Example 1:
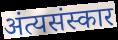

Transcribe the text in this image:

अंत्यसंस्कार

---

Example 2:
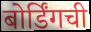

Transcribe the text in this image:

बोर्डिंगची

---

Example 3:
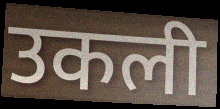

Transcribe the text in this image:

उकली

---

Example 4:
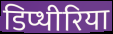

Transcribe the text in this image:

डिप्थीरिया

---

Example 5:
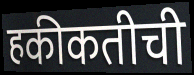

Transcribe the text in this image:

हकीकतीची